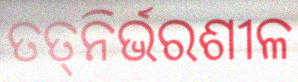
ତତ୍‍ନିର୍ଭରଶୀଳ